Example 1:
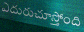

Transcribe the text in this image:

ఎదురుచూస్తోంది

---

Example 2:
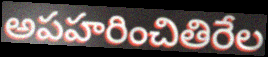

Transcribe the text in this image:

అపహరించితిరేల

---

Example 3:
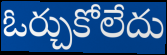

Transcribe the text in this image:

ఓర్చుకోలేదు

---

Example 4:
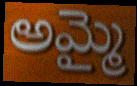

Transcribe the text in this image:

అమ్మై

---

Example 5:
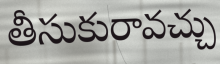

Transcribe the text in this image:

తీసుకురావచ్చు